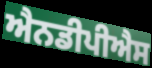
ਐਨਡੀਪੀਐਸ